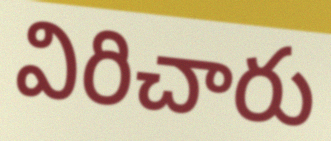
విరిచారు